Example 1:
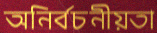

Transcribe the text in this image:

অনির্বচনীয়তা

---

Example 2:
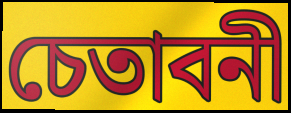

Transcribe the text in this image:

চেতাবনী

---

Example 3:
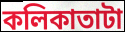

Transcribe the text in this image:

কলিকাতাটা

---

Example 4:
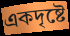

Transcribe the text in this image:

একদৃষ্টে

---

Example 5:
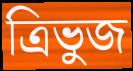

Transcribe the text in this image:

ত্রিভুজ